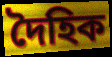
দৈহিক